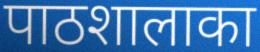
पाठशालाका